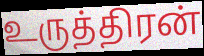
உருத்திரன்